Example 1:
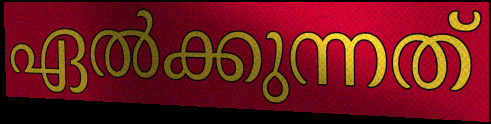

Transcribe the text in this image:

ഏൽക്കുന്നത്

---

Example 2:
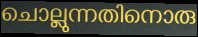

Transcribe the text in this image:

ചൊല്ലുന്നതിനൊരു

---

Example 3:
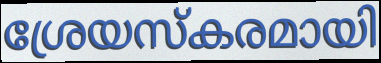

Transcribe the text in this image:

ശ്രേയസ്കരമായി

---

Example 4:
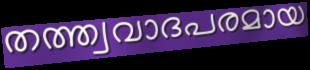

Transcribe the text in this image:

തത്ത്വവാദപരമായ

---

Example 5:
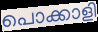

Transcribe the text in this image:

പൊക്കാളി